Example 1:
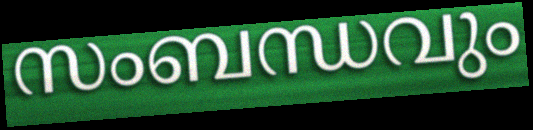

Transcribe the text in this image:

സംബന്ധവും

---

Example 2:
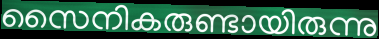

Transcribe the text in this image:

സൈനികരുണ്ടായിരുന്നു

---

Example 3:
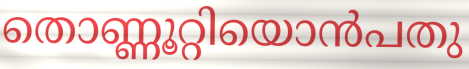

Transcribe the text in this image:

തൊണ്ണൂറ്റിയൊൻപതു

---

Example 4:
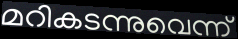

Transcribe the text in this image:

മറികടന്നുവെന്ന്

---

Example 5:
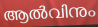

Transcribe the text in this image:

ആൽവിനും